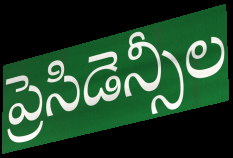
ప్రెసిడెన్సీల